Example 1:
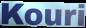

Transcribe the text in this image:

Kouri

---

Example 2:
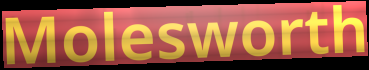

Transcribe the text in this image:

Molesworth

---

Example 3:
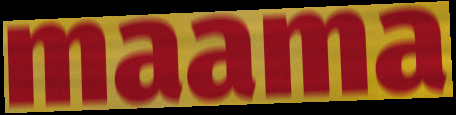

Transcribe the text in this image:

maama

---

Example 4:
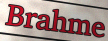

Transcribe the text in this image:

Brahme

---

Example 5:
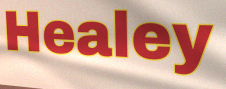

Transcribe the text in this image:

Healey